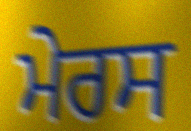
ਮੇਰਸ